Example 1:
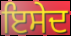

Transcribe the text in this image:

ਇਸੇਦ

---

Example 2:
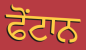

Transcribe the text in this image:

ਫੋਂਟਾਨ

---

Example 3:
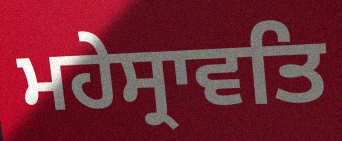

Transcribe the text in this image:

ਮਹੇਸ੍ਰਾਵਤਿ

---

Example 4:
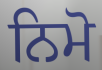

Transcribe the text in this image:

ਨਿਮੋ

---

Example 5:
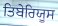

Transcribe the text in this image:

ਤਿਬੇਰਿਯੂਸ